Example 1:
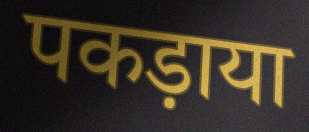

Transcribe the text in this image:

पकड़ाया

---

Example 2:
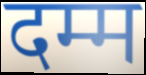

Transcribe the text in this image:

दम्म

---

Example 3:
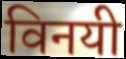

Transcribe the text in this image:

विनयी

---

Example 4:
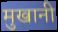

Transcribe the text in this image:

मुखानी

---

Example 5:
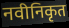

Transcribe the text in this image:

नवीनिकृत